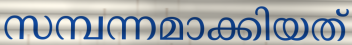
സമ്പന്നമാക്കിയത്